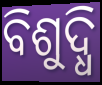
ବିଶୁଦ୍ଧି